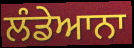
ਲੰਡੇਆਨਾ